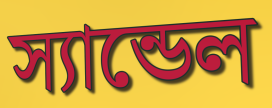
স্যান্ডেল